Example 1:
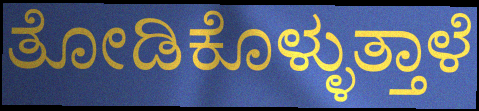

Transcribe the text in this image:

ತೋಡಿಕೊಳ್ಳುತ್ತಾಳೆ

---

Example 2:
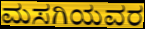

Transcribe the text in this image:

ಮಸಗಿಯವರ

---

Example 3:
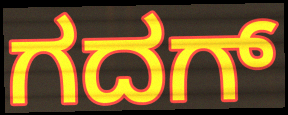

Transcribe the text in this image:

ಗದಗ್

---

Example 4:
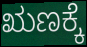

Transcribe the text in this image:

ಋಣಕ್ಕೆ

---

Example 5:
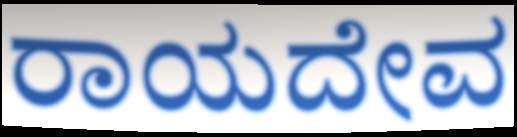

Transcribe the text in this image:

ರಾಯದೇವ